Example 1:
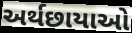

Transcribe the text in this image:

અર્થછાયાઓ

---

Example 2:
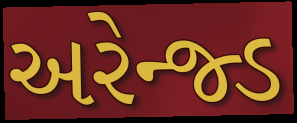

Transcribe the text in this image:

અરેન્જ્ડ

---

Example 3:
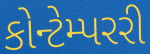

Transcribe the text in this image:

કોન્ટેમ્પરરી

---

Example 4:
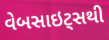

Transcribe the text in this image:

વેબસાઇટ્સથી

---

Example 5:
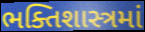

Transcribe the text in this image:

ભક્તિશાસ્ત્રમાં